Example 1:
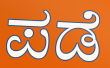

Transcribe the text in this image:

ಪಡೆ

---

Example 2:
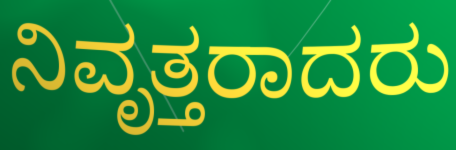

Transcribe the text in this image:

ನಿವೃತ್ತರಾದರು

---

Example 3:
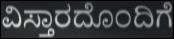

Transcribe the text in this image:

ವಿಸ್ತಾರದೊಂದಿಗೆ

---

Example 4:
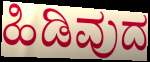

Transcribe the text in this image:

ಹಿಡಿವುದ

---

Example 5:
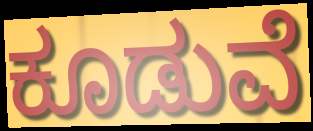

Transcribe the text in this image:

ಕೂಡುವೆ